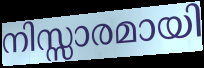
നിസ്സാരമായി